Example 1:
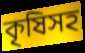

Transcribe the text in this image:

কৃষিসহ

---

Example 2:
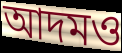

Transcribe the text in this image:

আদমও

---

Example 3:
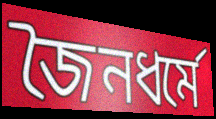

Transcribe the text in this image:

জৈনধর্মে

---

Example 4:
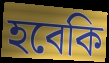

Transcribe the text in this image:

হবেকি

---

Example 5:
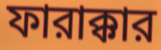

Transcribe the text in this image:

ফারাক্কার